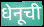
धेनूची